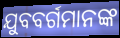
ଯୁବବର୍ଗମାନଙ୍କ